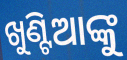
ଖୁଣ୍ଟିଆଙ୍କୁ